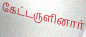
கேட்டருளினார்